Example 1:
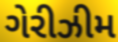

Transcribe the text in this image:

ગેરીઝીમ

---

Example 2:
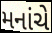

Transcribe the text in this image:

મનાંચે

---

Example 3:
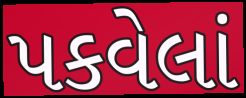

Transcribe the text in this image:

પકવેલાં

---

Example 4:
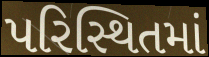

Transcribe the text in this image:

પરિસ્થિતમાં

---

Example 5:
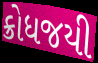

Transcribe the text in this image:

ક્રોધજયી